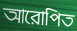
আরোপিত